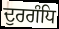
ਦੁਰਗੰਧਿ